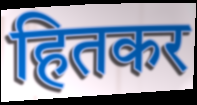
हितकर